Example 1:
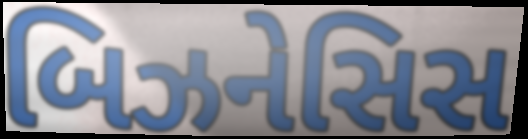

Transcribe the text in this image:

બિઝનેસિસ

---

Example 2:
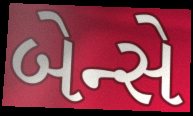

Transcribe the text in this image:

બેન્સે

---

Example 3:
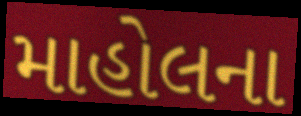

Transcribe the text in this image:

માહોલના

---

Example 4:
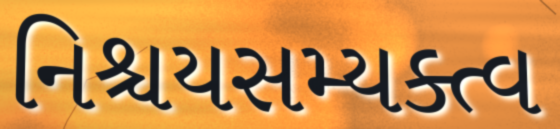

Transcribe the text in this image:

નિશ્ચયસમ્યક્ત્વ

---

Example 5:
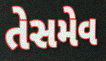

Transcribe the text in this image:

તેસમેવ